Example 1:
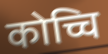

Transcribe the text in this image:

कोच्चि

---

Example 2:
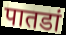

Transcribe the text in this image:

पातडां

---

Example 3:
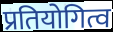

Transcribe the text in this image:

प्रतियोगित्व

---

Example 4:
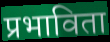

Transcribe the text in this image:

प्रभाविता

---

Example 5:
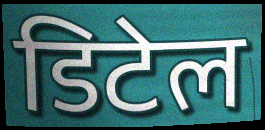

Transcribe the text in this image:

डिटेल